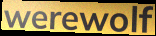
werewolf